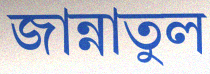
জান্নাতুল